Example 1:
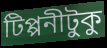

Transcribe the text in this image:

টিপ্পনীটুকু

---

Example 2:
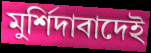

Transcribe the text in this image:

মুর্শিদাবাদেই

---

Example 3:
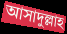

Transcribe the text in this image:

আসাদুল্লাহ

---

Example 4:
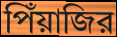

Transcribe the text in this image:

পিঁয়াজির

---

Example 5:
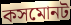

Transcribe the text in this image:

কসমোনট